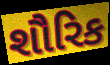
શૌરિક